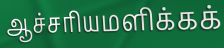
ஆச்சரியமளிக்கக்